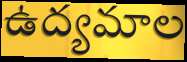
ఉద్యమాల